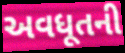
અવધૂતની